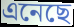
এনেছে